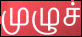
முழுச்